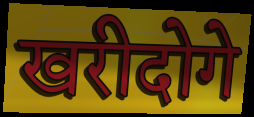
खरीदोगे